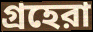
গ্রহেরা